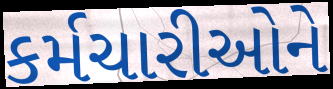
કર્મચારીઓને